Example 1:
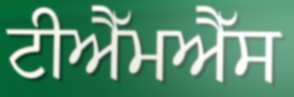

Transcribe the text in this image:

ਟੀਐੱਮਐੱਸ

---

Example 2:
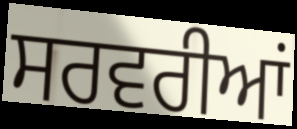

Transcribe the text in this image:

ਸਰਵਰੀਆਂ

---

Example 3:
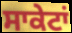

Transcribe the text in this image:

ਸਾਕੇਟਾਂ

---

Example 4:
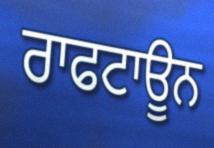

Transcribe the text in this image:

ਰਾਫਟਾਊਨ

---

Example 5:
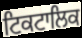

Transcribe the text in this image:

ਟਿਕਟਾਲਿਕ